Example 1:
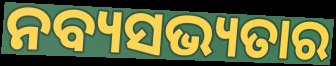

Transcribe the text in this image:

ନବ୍ୟସଭ୍ୟତାର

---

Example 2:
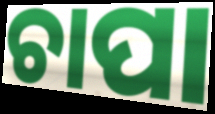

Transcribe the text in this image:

ଚାପା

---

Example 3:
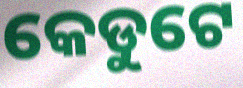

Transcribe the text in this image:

କେଡୁଟେ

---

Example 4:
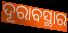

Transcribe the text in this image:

ଦୂରାବସ୍ଥାର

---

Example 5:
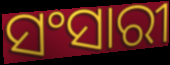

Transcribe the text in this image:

ସଂସାରୀ